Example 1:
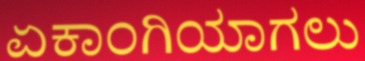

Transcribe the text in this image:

ಏಕಾಂಗಿಯಾಗಲು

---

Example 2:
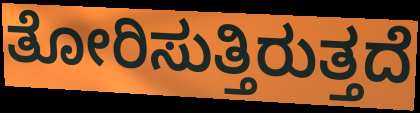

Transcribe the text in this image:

ತೋರಿಸುತ್ತಿರುತ್ತದೆ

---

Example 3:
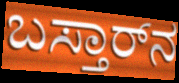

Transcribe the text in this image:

ಬಸ್ತಾರ್‌ನ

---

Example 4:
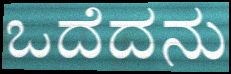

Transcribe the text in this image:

ಒದೆದನು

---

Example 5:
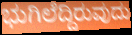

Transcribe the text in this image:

ಭುಗಿಲೆದ್ದಿರುವುದು